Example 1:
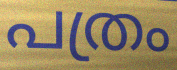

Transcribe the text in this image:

പത്രം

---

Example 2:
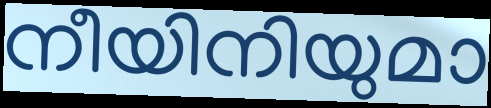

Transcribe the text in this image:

നീയിനിയുമാ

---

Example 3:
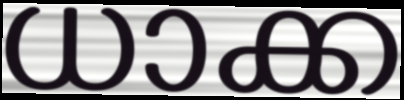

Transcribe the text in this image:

ധാക്ക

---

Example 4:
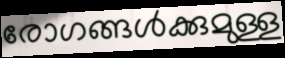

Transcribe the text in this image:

രോഗങ്ങൾക്കുമുള്ള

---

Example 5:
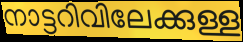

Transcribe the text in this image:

നാട്ടറിവിലേക്കുള്ള